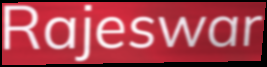
Rajeswar